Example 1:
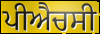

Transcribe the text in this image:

ਪੀਐਚਸੀ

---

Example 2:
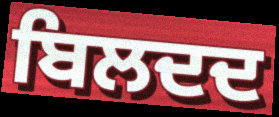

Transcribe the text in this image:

ਬਿਲਦਦ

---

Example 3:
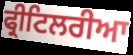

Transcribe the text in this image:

ਫ੍ਰੀਟਿਲਰੀਆ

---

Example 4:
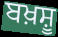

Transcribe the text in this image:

ਬਖ਼ਸ਼ੂ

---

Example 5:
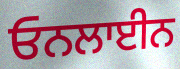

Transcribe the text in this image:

ਓਨਲਾਈਨ